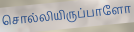
சொல்லியிருப்பாளோ